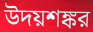
উদয়শঙ্কর